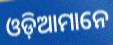
ଓଡ଼ିଆମାନେ